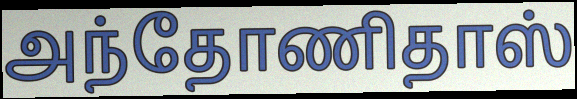
அந்தோணிதாஸ்